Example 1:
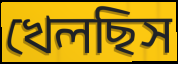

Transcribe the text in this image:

খেলছিস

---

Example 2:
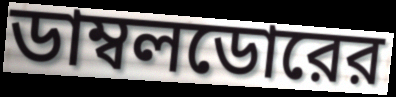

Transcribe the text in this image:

ডাম্বলডোরের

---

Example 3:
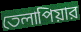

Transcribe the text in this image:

তেলাপিয়ার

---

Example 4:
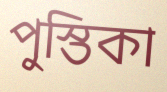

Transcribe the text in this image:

পুস্তিকা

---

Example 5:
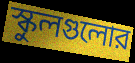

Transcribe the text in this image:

স্কুলগুলোর